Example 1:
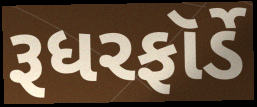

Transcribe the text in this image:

રૂધરફૉર્ડે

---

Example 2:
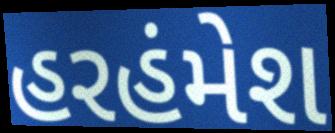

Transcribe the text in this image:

હરહંમેશ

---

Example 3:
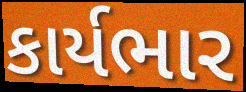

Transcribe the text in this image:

કાર્યભાર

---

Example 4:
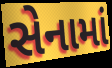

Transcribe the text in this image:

સેનામાં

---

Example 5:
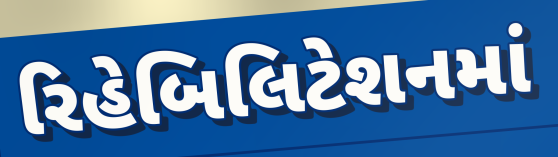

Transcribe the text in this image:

રિહેબિલિટેશનમાં